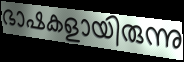
ഭാഷകളായിരുന്നു